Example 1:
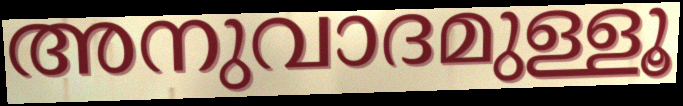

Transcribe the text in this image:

അനുവാദമുള്ളൂ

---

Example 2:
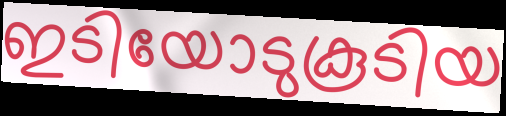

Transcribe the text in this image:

ഇടിയോടുകൂടിയ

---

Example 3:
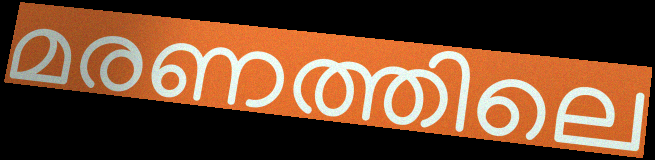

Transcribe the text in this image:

മരണത്തിലെ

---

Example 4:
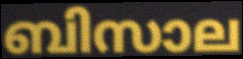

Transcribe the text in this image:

ബിസാല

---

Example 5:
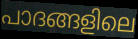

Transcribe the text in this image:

പാദങ്ങളിലെ